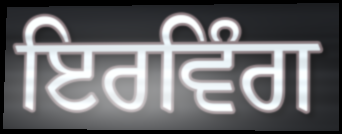
ਇਰਵਿੰਗ